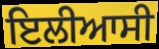
ਇਲੀਆਸੀ